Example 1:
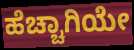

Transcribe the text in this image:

ಹೆಚ್ಚಾಗಿಯೇ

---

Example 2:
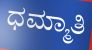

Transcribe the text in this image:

ಧಮ್ಮಾತಿ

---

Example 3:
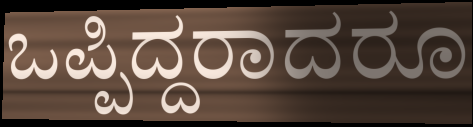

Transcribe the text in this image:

ಒಪ್ಪಿದ್ದರಾದರೂ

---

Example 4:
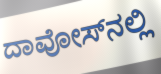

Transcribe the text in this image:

ದಾವೋಸ್‌ನಲ್ಲಿ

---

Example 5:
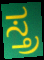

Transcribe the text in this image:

ಸ್ತ್ರ